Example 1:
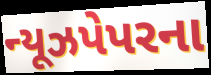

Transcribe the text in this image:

ન્યૂઝપેપરના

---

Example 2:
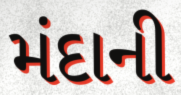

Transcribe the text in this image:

મંદાની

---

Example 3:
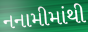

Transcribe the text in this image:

નનામીમાંથી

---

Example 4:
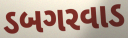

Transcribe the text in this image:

ડબગરવાડ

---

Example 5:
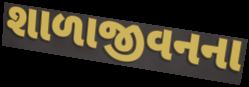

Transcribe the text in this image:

શાળાજીવનના